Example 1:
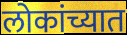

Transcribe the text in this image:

लोकांच्यात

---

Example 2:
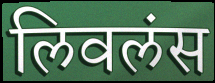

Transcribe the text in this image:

लिवलंस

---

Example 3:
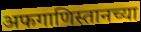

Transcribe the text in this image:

अफगाणिस्तानच्या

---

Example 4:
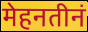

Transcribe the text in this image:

मेहनतीनं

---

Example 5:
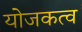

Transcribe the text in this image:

योजकत्व